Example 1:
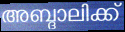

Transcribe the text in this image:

അബ്ദാലിക്ക്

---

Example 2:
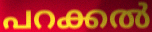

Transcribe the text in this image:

പറക്കൽ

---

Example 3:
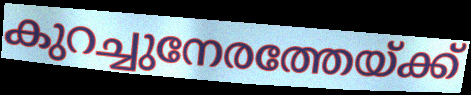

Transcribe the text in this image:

കുറച്ചുനേരത്തേയ്ക്ക്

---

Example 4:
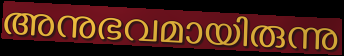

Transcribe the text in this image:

അനുഭവമായിരുന്നു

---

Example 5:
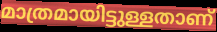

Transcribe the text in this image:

മാത്രമായിട്ടുള്ളതാണ്